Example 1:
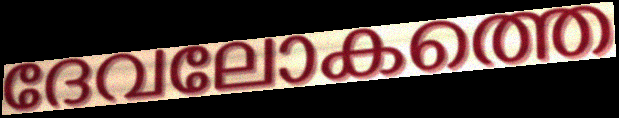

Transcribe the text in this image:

ദേവലോകത്തെ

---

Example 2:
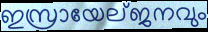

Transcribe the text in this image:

ഇസ്രായേല്ജനവും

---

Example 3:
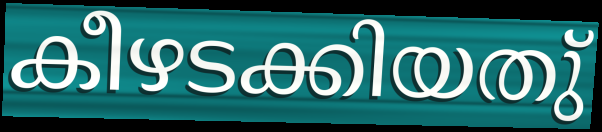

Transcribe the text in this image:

കീഴടക്കിയതു്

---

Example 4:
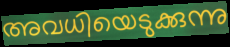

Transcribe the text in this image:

അവധിയെടുക്കുന്നു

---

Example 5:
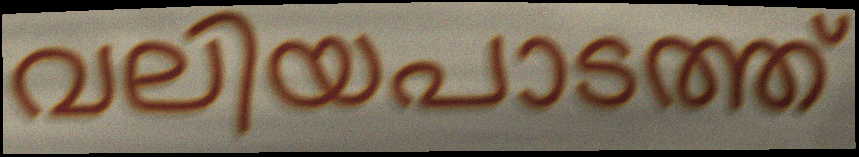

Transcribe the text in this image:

വലിയപാടത്ത്